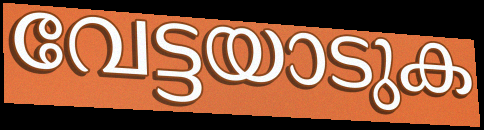
വേട്ടയാടുക